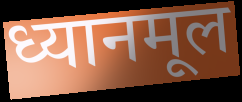
ध्यानमूल